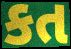
કત